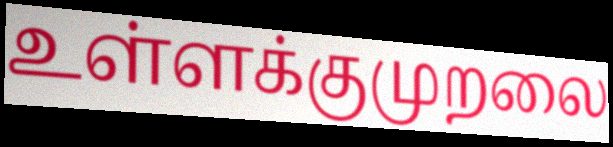
உள்ளக்குமுறலை